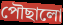
পৌছালো